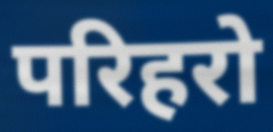
परिहरो